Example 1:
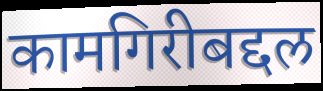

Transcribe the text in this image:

कामगिरीबद्दल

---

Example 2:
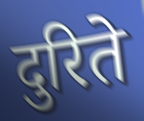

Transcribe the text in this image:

दुरिते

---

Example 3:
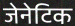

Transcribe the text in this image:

जेनेटिक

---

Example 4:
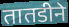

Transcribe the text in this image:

तातडीने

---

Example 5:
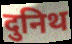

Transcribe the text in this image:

दुनिथ